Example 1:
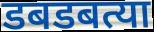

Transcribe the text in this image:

डबडबत्या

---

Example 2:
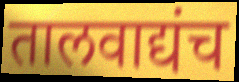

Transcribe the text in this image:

तालवाद्यंच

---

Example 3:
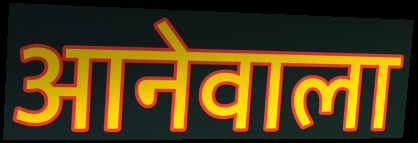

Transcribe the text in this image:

आनेवाला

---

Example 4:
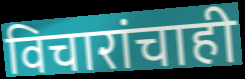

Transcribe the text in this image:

विचारांचाही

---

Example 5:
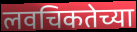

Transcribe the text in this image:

लवचिकतेच्या